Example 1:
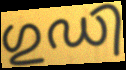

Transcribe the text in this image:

ഗുഡി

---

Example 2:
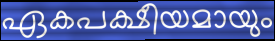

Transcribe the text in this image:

ഏകപക്ഷീയമായും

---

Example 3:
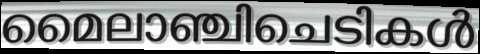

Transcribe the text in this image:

മൈലാഞ്ചിചെടികൾ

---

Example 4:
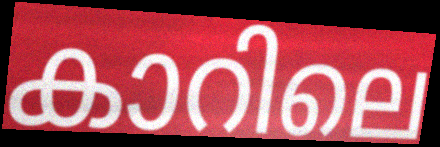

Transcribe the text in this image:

കാറിലെ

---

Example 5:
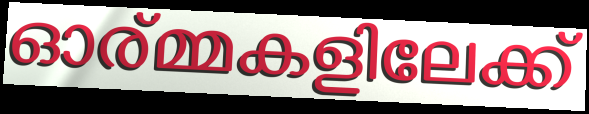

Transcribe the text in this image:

ഓര്മ്മകളിലേക്ക്